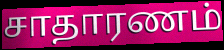
சாதாரணம்